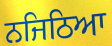
ਨਜਿਠਿਆ